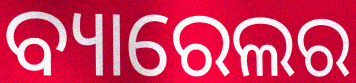
ବ୍ୟାରେଲର